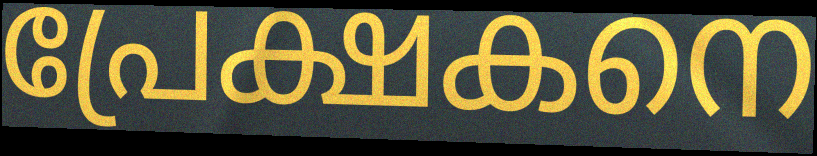
പ്രേക്ഷകനെ